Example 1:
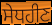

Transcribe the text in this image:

ਸੇਧਹੀਣ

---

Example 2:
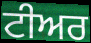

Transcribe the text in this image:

ਟੀਅਰ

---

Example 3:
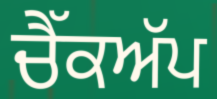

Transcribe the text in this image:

ਚੈੱਕਅੱਪ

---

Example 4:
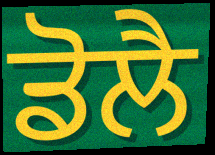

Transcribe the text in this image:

ਡੋਲੈ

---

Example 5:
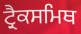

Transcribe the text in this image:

ਟ੍ਰੈਕਸਮਿਥ